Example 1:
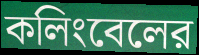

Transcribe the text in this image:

কলিংবেলের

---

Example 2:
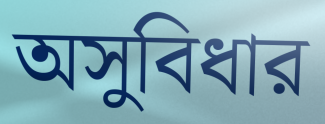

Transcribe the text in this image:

অসুবিধার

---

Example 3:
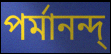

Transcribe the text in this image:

পর্মানন্দ্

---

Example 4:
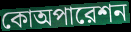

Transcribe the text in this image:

কোঅপারেশন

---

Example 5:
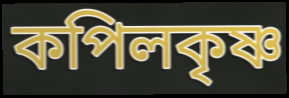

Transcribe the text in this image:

কপিলকৃষ্ণ